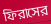
ফিরাসের